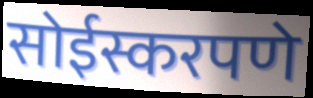
सोईस्करपणे